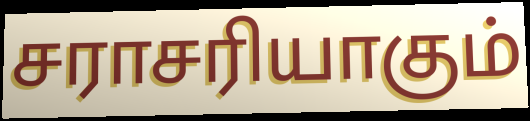
சராசரியாகும்